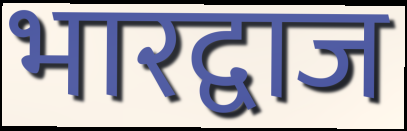
भारद्वाज